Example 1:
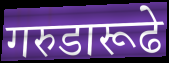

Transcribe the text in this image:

गरुडारूढे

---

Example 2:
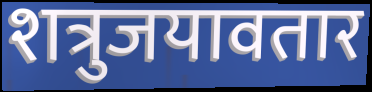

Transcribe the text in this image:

शत्रुजयावतार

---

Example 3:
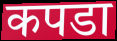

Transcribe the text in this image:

कपडा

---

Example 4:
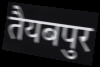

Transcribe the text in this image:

तैयबपुर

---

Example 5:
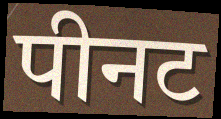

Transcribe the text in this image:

पीनट